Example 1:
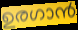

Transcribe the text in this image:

ഉരഗാൻ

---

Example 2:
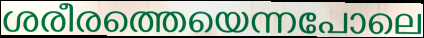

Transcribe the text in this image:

ശരീരത്തെയെന്നപോലെ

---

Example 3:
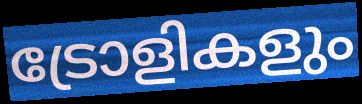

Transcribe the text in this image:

ട്രോളികളും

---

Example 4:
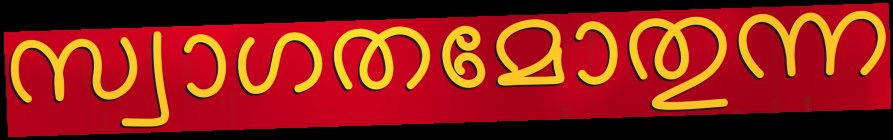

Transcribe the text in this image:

സ്വാഗതമോതുന്ന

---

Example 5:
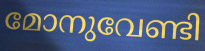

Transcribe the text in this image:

മോനുവേണ്ടി